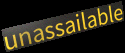
unassailable